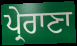
ਪ੍ਰੇਰਾਣਾ